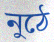
নুঠে